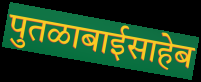
पुतळाबाईसाहेब